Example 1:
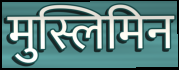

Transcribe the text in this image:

मुस्लिमिन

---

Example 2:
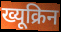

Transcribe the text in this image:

ख्यूक्रिन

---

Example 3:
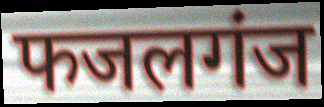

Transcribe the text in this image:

फजलगंज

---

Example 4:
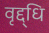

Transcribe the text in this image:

वृद्द्धि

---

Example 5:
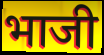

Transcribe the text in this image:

भाजी